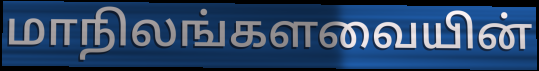
மாநிலங்களவையின்